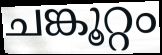
ചങ്കൂറ്റം